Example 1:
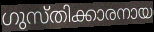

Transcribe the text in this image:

ഗുസ്തിക്കാരനായ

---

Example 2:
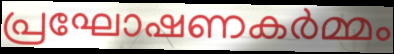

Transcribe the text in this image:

പ്രഘോഷണകർമ്മം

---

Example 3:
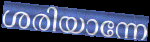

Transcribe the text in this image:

ശരിയാന്നേ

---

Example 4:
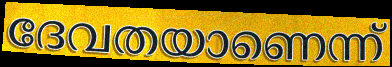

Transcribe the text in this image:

ദേവതയാണെന്ന്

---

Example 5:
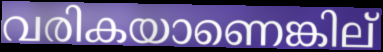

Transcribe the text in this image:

വരികയാണെങ്കില്